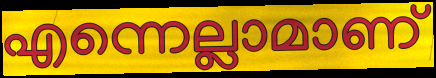
എന്നെല്ലാമാണ്